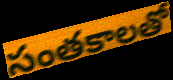
సంతకాలతో